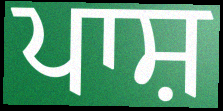
ਪਾਸ਼